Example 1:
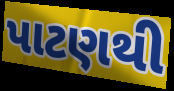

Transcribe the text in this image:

પાટણથી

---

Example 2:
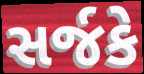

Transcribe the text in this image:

સર્જકે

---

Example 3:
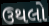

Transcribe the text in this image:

ઉથલો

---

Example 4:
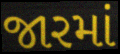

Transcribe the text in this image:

જારમાં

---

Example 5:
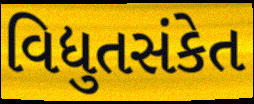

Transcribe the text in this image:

વિદ્યુતસંકેત